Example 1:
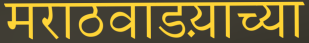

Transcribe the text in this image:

मराठवाडय़ाच्या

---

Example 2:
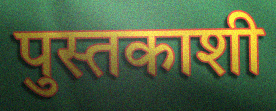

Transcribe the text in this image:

पुस्तकाशी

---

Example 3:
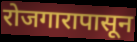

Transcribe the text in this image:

रोजगारापासून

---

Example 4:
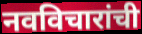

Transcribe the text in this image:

नवविचारांची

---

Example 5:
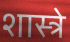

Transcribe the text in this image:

शास्त्रे